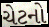
ચેટનો